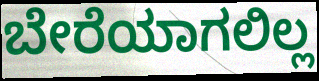
ಬೇರೆಯಾಗಲಿಲ್ಲ